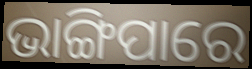
ଭାଙ୍ଗିପାରେ